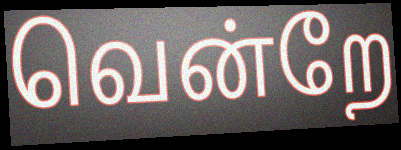
வென்றே